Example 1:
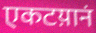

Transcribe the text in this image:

एकटय़ानं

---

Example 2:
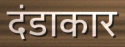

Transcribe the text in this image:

दंडाकार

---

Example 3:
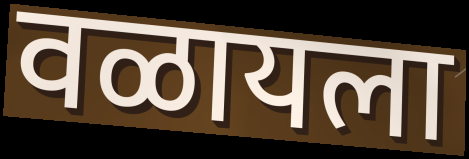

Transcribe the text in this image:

वळायला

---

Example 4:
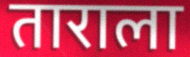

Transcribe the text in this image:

ताराला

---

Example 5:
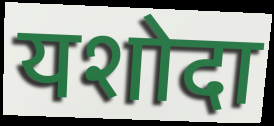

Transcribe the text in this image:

यशोदा